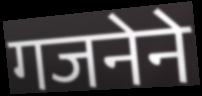
गजनेने